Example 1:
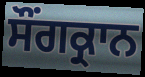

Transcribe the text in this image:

ਸੌਂਗਕ੍ਰਾਨ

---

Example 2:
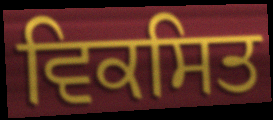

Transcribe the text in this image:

ਵਿਕਸਿਤ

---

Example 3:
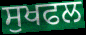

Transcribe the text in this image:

ਸੁਖਫਲ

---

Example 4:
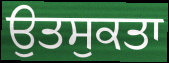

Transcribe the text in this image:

ਉਤਸੁਕਤਾ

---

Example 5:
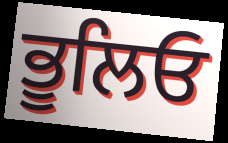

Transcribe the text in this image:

ਭੂਲਿਓ